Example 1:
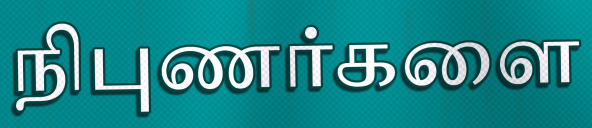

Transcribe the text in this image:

நிபுணர்களை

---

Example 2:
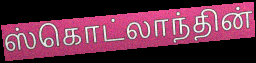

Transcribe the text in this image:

ஸ்கொட்லாந்தின்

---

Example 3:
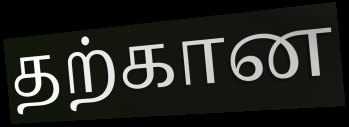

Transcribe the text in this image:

தற்கான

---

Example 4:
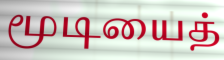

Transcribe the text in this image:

மூடியைத்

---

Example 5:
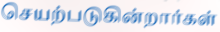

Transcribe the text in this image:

செயற்படுகின்றார்கள்